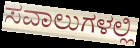
ಸವಾಲುಗಳಲ್ಲಿ